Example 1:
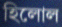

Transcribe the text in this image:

হিলোল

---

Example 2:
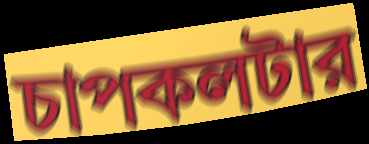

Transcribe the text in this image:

চাপকলটার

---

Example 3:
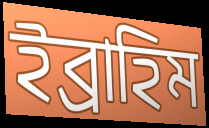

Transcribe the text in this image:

ইব্রাহিম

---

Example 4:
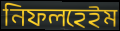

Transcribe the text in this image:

নিফলহেইম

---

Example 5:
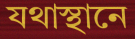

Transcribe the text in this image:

যথাস্থানে